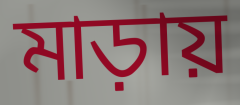
মাড়ায়